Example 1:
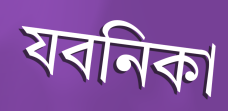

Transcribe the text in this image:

যবনিকা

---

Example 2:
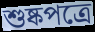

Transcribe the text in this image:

শুষ্কপত্রে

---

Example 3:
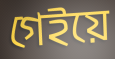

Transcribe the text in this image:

গেইয়ে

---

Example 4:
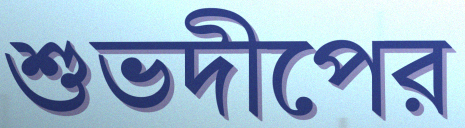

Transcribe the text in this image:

শুভদীপের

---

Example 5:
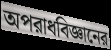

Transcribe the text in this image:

অপরাধবিজ্ঞানের